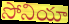
సోనియా